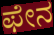
ಫೇನ